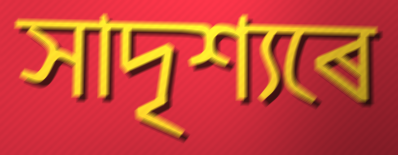
সাদৃশ্যৰে